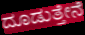
ದೂಡುತ್ತೇನೆ